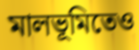
মালভূমিতেও